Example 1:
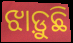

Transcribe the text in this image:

ଝାଡ଼ୁଛି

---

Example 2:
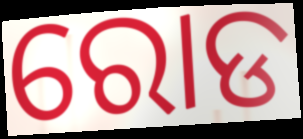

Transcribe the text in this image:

ରୋଡ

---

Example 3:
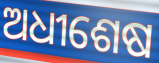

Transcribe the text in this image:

ଅଧୀଶେଷ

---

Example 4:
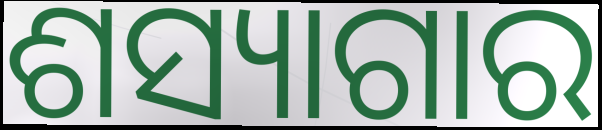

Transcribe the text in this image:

ଶସ୍ୟାଗାର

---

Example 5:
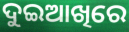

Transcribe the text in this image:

ଦୁଇଆଖିରେ